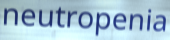
neutropenia